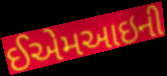
ઈએમઆઇની